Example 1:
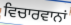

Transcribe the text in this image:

ਵਿਚਾਰਵਾਨਾਂ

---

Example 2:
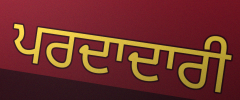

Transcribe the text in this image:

ਪਰਦਾਦਾਰੀ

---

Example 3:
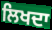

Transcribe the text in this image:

ਲਿਖਦਾ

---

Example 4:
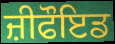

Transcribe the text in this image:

ਜ਼ੀਫੌਇਡ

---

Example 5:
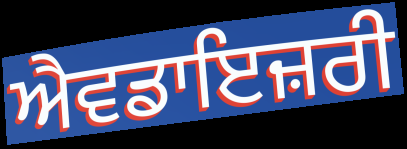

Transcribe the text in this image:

ਐਵਡਾਇਜ਼ਰੀ